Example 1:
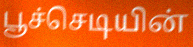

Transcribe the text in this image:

பூச்செடியின்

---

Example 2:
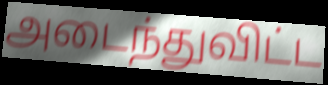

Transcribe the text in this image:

அடைந்துவிட்ட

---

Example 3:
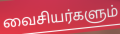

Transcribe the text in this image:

வைசியர்களும்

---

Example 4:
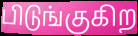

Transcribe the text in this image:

பிடுங்குகிற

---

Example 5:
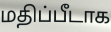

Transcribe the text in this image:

மதிப்பீடாக